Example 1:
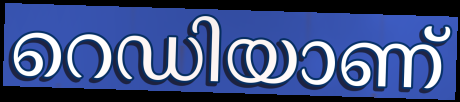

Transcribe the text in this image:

റെഡിയാണ്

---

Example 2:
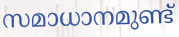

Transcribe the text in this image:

സമാധാനമുണ്ട്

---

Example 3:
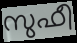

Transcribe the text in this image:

സുഫീ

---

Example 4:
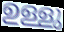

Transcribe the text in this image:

ഉള്ളു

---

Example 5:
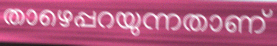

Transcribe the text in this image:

താഴെപ്പറയുന്നതാണ്